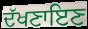
ਦੱਖਣਾਇਣ